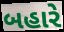
બહારે